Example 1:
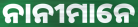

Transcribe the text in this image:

ନାନୀମାନେ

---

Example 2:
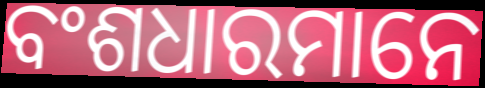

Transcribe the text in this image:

ବଂଶଧାରମାନେ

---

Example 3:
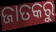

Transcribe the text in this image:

ଜାତକରୁ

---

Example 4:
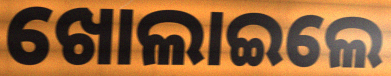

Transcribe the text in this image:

ଖୋଲାଇଲେ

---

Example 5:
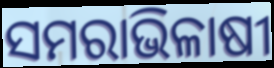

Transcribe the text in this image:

ସମରାଭିଳାଷୀ